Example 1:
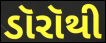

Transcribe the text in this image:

ડૉરૉથી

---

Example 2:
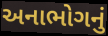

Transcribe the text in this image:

અનાભોગનું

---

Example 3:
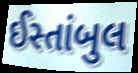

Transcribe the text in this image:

ઈસ્તાંબુલ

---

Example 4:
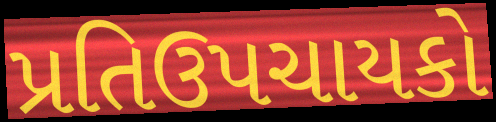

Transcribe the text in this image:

પ્રતિઉપચાયકો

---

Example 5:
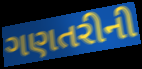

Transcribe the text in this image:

ગણતરીની